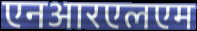
एनआरएलएम